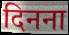
दिनना